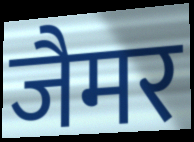
जैमर